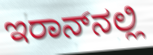
ಇರಾನ್‌ನಲ್ಲಿ